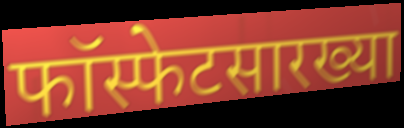
फॉस्फेटसारख्या